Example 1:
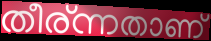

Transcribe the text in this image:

തീര്ന്നതാണ്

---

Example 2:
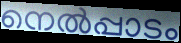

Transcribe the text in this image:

നെൽപ്പാടം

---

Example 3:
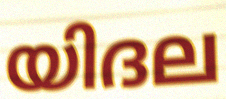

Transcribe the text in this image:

യിദല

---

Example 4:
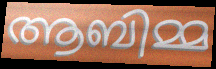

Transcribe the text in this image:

ആബിമ്മ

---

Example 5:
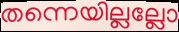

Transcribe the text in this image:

തന്നെയില്ലല്ലോ